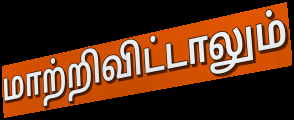
மாற்றிவிட்டாலும்